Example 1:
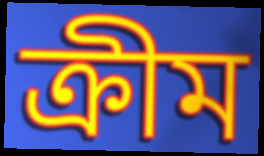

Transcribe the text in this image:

ক্ৰীম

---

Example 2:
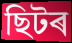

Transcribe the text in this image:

ছিটৰ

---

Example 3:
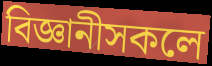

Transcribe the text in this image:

বিজ্ঞানীসকলে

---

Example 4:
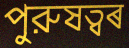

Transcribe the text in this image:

পুৰুষত্বৰ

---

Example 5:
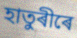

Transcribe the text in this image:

হাতুৰীৰে